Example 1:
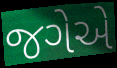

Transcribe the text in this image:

જગેએ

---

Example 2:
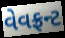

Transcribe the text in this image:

વેવફ્રન્ટ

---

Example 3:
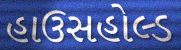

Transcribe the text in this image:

હાઉસહોલ્ડ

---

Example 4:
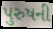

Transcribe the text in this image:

પુરુષની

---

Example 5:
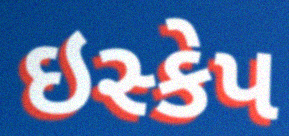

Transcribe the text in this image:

ઇસ્કેપ